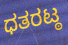
ಧತರಟ್ಠ